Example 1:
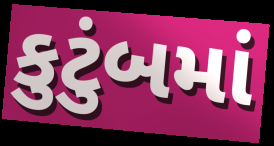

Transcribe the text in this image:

કુટુંબમાં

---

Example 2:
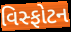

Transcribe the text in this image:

વિસ્ફોટન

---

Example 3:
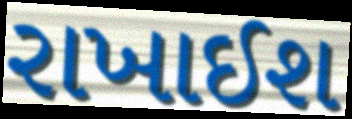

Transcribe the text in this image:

રાખાઈશ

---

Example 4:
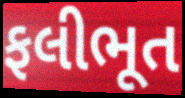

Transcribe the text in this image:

ફલીભૂત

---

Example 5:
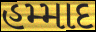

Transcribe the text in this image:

હમ્માદ